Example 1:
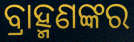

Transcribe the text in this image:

ବ୍ରାହ୍ମଣଙ୍କର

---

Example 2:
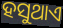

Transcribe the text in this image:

ହସୁଥାଏ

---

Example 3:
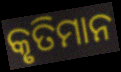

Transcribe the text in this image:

କୃତିମାନ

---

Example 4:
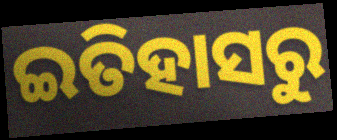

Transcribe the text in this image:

ଇତିହାସରୁ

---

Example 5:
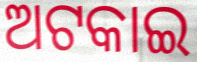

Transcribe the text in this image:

ଅଟକାଇ